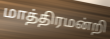
மாத்திரமன்றி